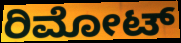
ರಿಮೋಟ್